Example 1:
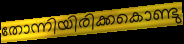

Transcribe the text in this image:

തോന്നിയിരിക്കകൊണ്ടു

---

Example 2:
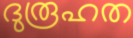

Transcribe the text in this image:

ദുരൂഹത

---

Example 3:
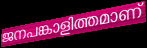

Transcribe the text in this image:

ജനപങ്കാളിത്തമാണ്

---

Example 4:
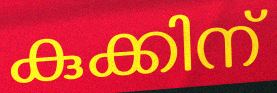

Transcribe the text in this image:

കുക്കിന്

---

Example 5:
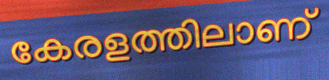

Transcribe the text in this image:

കേരളത്തിലാണ്